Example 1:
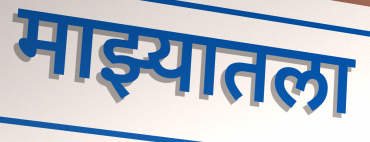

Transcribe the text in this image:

माझ्यातला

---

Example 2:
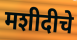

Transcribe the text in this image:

मशीदीचे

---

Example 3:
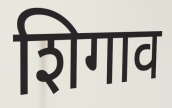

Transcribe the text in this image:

शिगाव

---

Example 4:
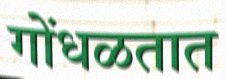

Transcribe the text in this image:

गोंधळतात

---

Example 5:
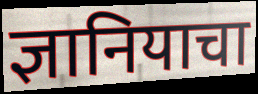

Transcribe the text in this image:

ज्ञानियाचा